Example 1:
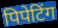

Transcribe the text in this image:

पिपेटिंग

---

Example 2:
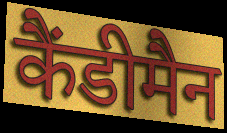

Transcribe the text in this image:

कैंडीमैन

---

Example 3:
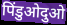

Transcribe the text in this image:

पिंडुओदुओ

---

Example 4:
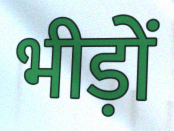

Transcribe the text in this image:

भीड़ों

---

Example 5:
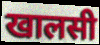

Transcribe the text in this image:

खालसी